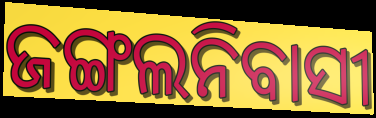
ଜଙ୍ଗଲନିବାସୀ